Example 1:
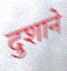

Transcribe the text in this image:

दुशाने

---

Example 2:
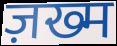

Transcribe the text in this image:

ज़ख्म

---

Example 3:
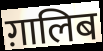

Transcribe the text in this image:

ग़ालिब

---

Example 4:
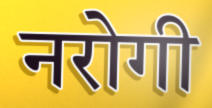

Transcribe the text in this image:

नरोगी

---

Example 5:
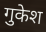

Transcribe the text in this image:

गुकेश